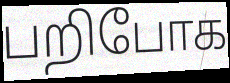
பறிபோக